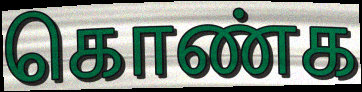
கொண்க